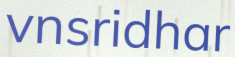
vnsridhar